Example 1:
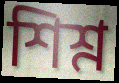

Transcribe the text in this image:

শিশ্ন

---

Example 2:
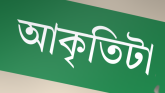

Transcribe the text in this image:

আকৃতিটা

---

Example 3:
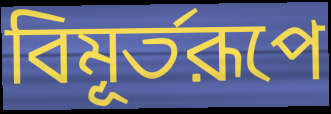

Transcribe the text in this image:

বিমূর্তরূপে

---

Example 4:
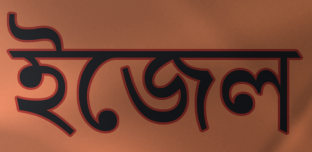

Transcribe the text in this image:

ইজেল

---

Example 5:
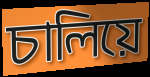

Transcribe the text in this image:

চালিয়ে